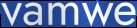
vamwe